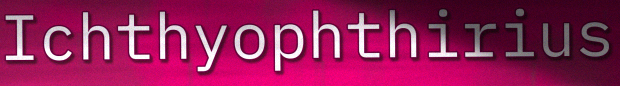
Ichthyophthirius